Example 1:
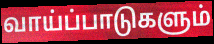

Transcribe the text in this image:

வாய்ப்பாடுகளும்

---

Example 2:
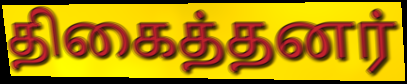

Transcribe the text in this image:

திகைத்தனர்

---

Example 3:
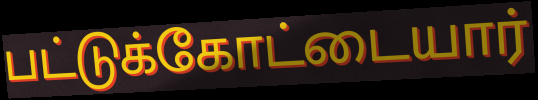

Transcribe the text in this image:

பட்டுக்கோட்டையார்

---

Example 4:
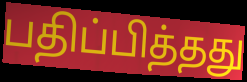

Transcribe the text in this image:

பதிப்பித்தது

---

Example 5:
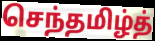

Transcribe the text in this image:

செந்தமிழ்த்